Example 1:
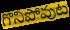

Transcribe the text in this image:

గొనిపోవుట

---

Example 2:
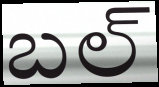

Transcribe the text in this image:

బల్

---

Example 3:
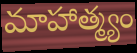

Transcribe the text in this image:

మాహాత్మ్యం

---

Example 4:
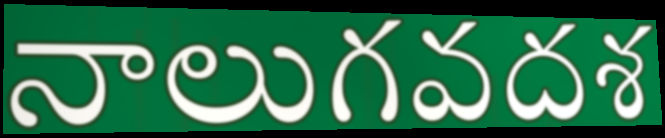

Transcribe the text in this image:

నాలుగవదశ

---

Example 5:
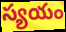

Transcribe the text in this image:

స్యయం